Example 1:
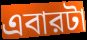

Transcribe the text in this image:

এবারটা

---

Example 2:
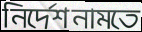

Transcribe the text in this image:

নির্দেশনামতে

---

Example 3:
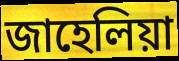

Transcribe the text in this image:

জাহেলিয়া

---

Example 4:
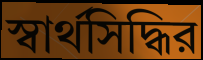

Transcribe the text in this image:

স্বার্থসিদ্ধির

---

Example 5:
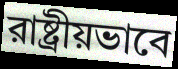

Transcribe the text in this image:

রাষ্ট্রীয়ভাবে